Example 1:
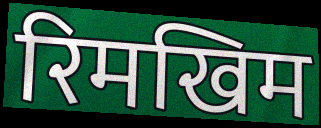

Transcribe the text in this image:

रिमखिम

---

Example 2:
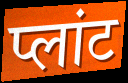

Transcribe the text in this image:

प्लांट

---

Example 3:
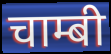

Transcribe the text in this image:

चाम्बी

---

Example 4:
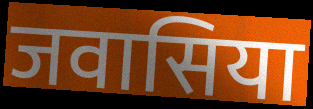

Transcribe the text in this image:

जवासिया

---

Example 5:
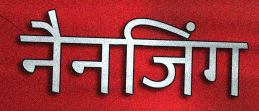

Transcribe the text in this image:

नैनजिंग